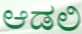
ಆಡಲಿ